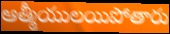
ఆత్మీయులయిపోతారు